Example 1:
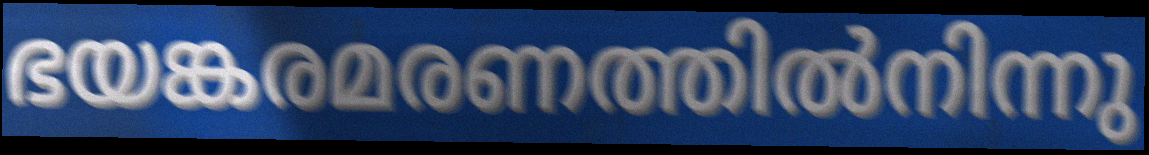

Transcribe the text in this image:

ഭയങ്കരമരണത്തിൽനിന്നു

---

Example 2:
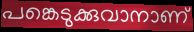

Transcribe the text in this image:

പങ്കെടുക്കുവാനാണ്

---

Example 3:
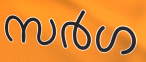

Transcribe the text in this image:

സർഗ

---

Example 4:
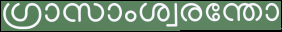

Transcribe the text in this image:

ഗ്രാസാംശ്വരന്തോ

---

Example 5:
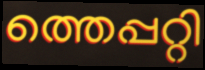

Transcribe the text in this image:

ത്തെപ്പറ്റി